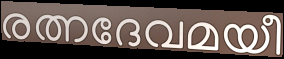
രത്നദേവമയീ